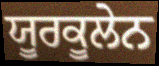
ਯੂਰਕੂਲੇਨ